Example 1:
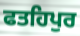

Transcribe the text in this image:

ਫਤਹਿਪੁਰ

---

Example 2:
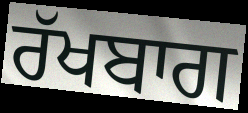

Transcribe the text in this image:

ਰੱਖਬਾਗ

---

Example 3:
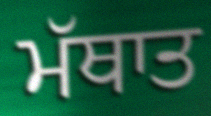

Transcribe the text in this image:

ਮੱਥਾਤ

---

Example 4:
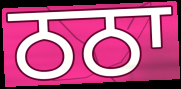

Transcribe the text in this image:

ਠਠਾ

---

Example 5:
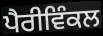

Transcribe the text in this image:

ਪੈਰੀਵਿੰਕਲ